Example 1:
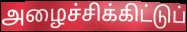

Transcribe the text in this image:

அழைச்சிக்கிட்டுப்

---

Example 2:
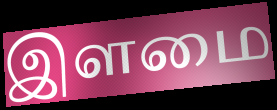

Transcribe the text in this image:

இளமை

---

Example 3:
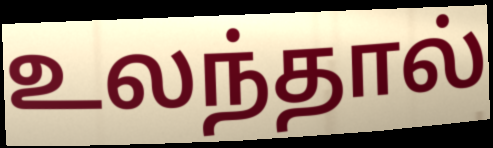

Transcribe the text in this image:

உலந்தால்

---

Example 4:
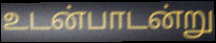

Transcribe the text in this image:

உடன்பாடன்று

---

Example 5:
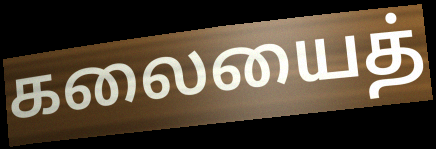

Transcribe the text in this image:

கலையைத்